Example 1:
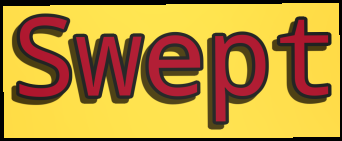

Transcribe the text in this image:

Swept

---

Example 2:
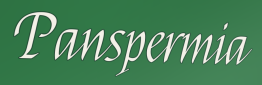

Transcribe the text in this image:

Panspermia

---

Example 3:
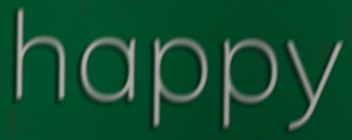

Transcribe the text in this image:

happy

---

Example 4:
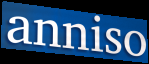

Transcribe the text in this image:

anniso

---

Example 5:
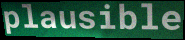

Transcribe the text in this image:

plausible